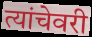
त्यांचेवरी